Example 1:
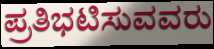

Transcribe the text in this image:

ಪ್ರತಿಭಟಿಸುವವರು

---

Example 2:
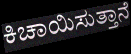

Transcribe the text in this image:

ಕಿಚಾಯಿಸುತ್ತಾನೆ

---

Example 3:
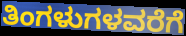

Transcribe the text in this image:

ತಿಂಗಳುಗಳವರೆಗೆ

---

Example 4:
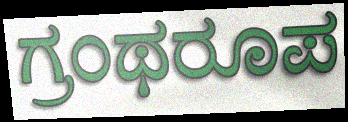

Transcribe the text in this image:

ಗ್ರಂಥರೂಪ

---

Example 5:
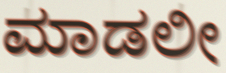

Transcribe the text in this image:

ಮಾಡಲೀ